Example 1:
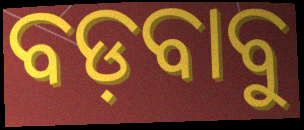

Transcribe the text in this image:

ବଡ଼ବାବୁ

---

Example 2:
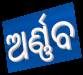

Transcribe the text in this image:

ଅର୍ଣ୍ଣବ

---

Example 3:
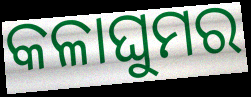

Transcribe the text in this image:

କଳାଘୁମର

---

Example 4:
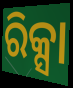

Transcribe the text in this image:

ରିକ୍ସା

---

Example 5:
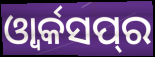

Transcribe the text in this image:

ଓ୍ୱାର୍କସପ୍‌ର